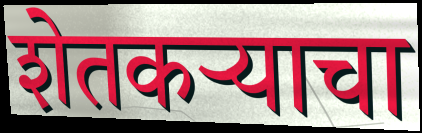
शेतकऱ्याचा